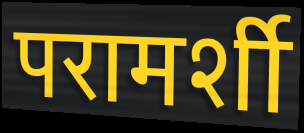
परामर्शी